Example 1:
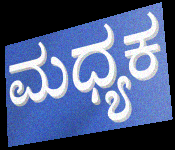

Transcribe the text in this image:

ಮಧ್ಯಕ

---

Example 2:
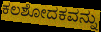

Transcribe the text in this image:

ಕಲಶೋದಕವನ್ನು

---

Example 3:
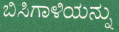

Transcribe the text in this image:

ಬಿಸಿಗಾಳಿಯನ್ನು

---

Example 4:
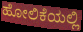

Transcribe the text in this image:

ಹೋಲಿಕೆಯಲ್ಲಿ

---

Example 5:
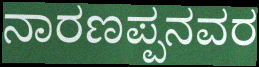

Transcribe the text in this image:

ನಾರಣಪ್ಪನವರ